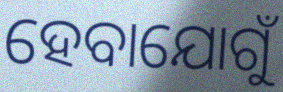
ହେବାଯୋଗୁଁ